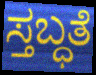
ಸ್ತಬ್ಧತೆ